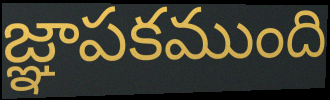
జ్ఞాపకముంది